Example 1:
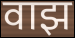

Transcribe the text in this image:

वाझ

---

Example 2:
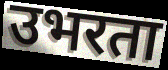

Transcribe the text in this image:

उभरता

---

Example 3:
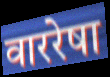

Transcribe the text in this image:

वाररेषा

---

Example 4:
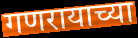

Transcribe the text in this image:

गणरायाच्या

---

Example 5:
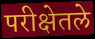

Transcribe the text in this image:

परीक्षेतले